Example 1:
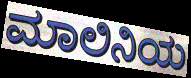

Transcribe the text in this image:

ಮಾಲಿನಿಯ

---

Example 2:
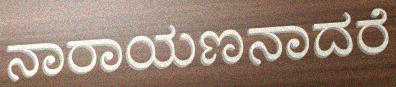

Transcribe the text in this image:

ನಾರಾಯಣನಾದರೆ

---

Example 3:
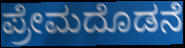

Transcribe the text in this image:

ಪ್ರೇಮದೊಡನೆ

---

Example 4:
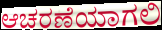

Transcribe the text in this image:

ಆಚರಣೆಯಾಗಲಿ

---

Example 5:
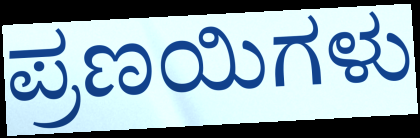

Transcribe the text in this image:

ಪ್ರಣಯಿಗಳು